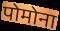
पोमोना